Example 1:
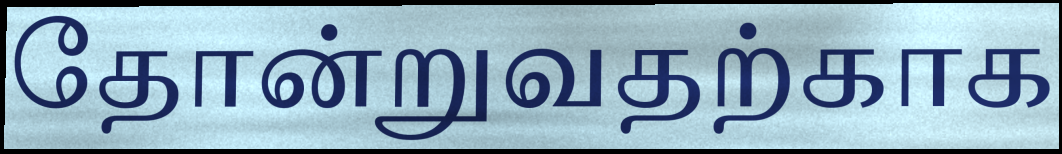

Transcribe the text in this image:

தோன்றுவதற்காக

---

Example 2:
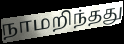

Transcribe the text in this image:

நாமறிந்தது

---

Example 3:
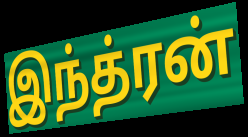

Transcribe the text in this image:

இந்த்ரன்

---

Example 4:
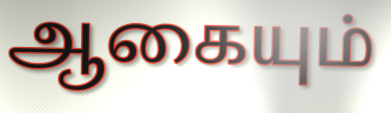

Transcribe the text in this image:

ஆகையும்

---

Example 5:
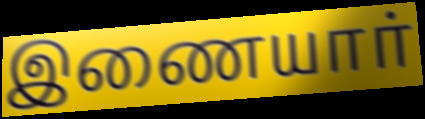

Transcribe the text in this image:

இணையார்